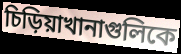
চিড়িয়াখানাগুলিকে